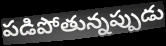
పడిపోతున్నప్పుడు